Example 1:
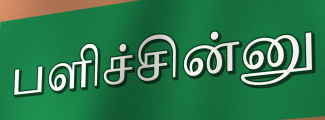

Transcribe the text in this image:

பளிச்சின்னு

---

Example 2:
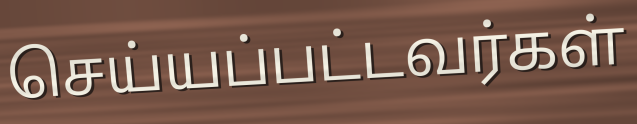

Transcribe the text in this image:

செய்யப்பட்டவர்கள்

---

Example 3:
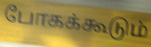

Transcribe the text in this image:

போகக்கூடும்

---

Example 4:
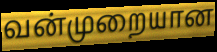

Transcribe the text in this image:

வன்முறையான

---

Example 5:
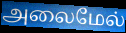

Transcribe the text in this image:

அலைமேல்